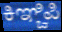
ಕಿಞ್ಚಿಪಿ